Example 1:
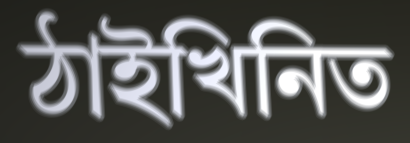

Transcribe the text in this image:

ঠাইখিনিত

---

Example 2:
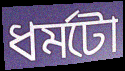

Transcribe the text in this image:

ধৰ্মটো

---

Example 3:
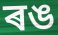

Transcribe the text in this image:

ৰঙ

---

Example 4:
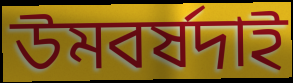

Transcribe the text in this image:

উমবৰ্ষদাই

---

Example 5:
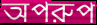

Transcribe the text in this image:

অপৰুপ